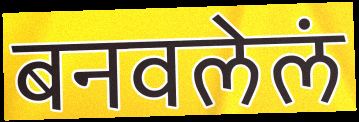
बनवलेलं